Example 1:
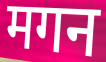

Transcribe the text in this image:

मगन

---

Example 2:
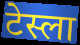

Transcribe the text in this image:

टेस्ला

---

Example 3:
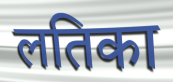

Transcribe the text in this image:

लतिका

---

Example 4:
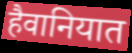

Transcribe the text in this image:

हैवानियात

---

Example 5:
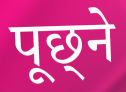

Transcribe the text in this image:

पूछ्ने